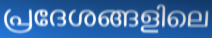
പ്രദേശങ്ങളിലെ